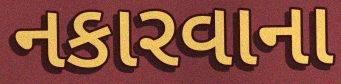
નકારવાના